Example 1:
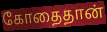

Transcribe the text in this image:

கோதைதான்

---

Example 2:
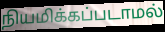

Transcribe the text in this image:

நியமிக்கப்படாமல்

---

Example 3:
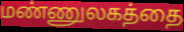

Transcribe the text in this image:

மண்ணுலகத்தை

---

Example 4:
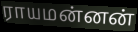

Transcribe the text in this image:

ராயமன்னன்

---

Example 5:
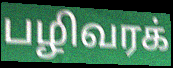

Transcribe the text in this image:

பழிவரக்